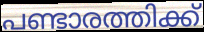
പണ്ടാരത്തിക്ക്